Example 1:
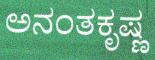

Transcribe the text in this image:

ಅನಂತಕೃಷ್ಣ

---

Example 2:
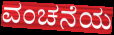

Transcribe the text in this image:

ವಂಚನೆಯ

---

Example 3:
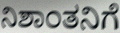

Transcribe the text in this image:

ನಿಶಾಂತನಿಗೆ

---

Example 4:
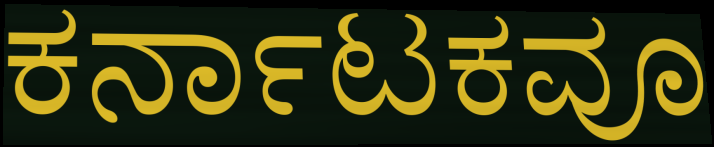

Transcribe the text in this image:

ಕರ್ನಾಟಕವೂ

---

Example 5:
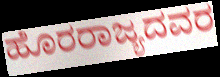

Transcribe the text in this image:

ಹೊರರಾಜ್ಯದವರ